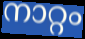
നാറ്റം